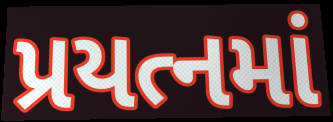
પ્રયત્નમાં